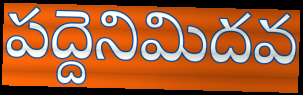
పద్దెనిమిదవ